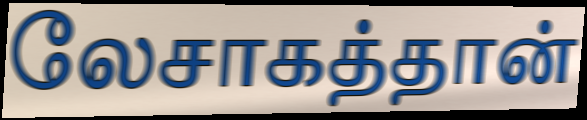
லேசாகத்தான்